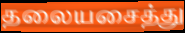
தலையசைத்து